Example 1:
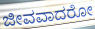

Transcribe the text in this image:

ಜೀವವಾದರೋ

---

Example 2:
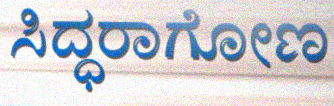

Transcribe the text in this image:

ಸಿದ್ಧರಾಗೋಣ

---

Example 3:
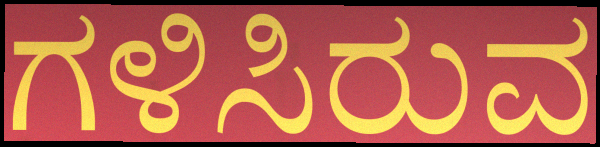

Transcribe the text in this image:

ಗಳಿಸಿರುವ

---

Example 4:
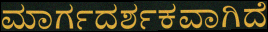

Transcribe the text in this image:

ಮಾರ್ಗದರ್ಶಕವಾಗಿದೆ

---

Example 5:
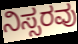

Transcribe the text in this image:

ನಿಸ್ಸರವು